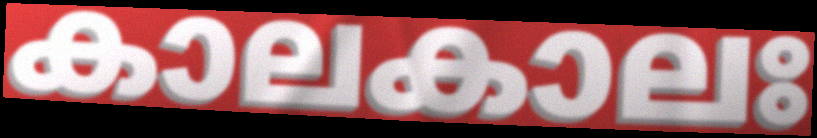
കാലകാലഃ